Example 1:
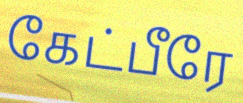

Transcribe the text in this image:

கேட்பீரே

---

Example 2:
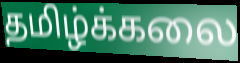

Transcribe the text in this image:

தமிழ்க்கலை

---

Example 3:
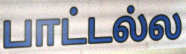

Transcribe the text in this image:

பாட்டல்ல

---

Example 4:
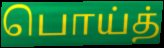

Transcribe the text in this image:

பொய்த்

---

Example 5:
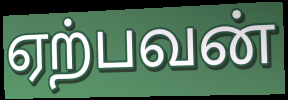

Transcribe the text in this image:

ஏற்பவன்